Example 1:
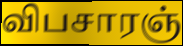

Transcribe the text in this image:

விபசாரஞ்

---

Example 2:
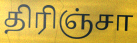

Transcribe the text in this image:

திரிஞ்சா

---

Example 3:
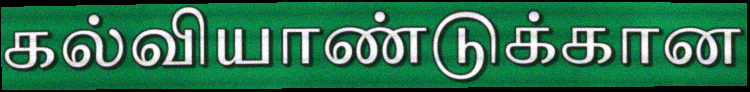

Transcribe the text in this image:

கல்வியாண்டுக்கான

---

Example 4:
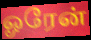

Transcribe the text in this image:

ஓரேன்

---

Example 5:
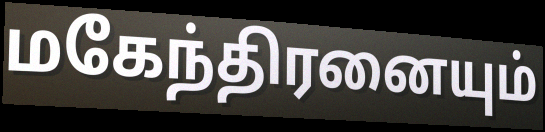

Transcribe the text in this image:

மகேந்திரனையும்